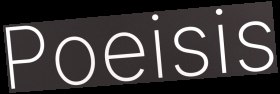
Poeisis